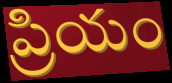
ప్రియం